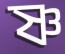
ষ্ণ